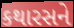
કથારસને